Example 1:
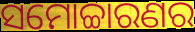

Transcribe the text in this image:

ସମୋଚ୍ଚାରଣର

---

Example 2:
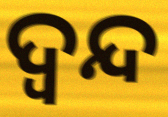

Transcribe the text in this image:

ଦ୍ଵନ୍ଦ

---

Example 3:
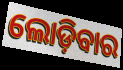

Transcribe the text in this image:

ଲୋଡ଼ିବାର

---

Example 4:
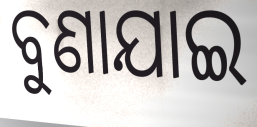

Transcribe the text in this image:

ବୁଣାଯାଇ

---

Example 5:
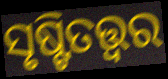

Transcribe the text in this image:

ସୃଷ୍ଟିତତ୍ତ୍ୱର